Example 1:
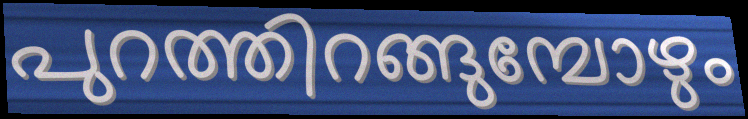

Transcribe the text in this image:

പുറത്തിറങ്ങുമ്പോഴും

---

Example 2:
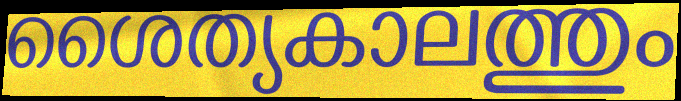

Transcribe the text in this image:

ശൈത്യകാലത്തും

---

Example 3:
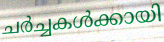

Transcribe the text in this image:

ചർച്ചകൾക്കായി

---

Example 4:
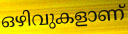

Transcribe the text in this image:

ഒഴിവുകളാണ്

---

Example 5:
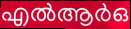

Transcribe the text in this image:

എൽആർഒ